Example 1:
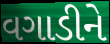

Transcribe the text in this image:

વગાડીને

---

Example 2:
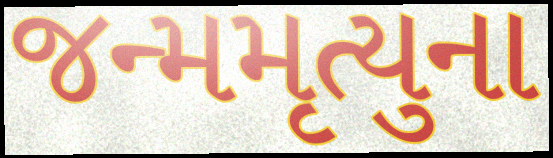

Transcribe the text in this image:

જન્મમૃત્યુના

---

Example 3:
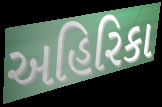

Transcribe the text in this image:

અહિરિકા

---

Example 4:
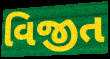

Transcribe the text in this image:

વિજીત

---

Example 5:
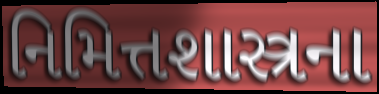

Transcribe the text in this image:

નિમિત્તશાસ્ત્રના